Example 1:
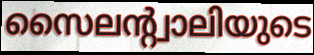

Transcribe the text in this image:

സൈലന്റ്വാലിയുടെ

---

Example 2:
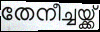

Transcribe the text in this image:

തേനീച്ചയ്ക്ക്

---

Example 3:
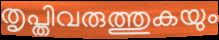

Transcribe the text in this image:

തൃപ്തിവരുത്തുകയും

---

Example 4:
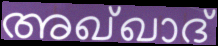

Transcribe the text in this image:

അഖ്ഖാദ്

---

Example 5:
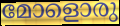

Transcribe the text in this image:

മോളൊരു